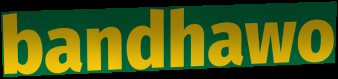
bandhawo